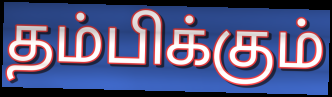
தம்பிக்கும்